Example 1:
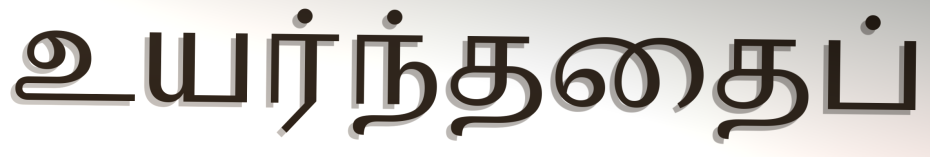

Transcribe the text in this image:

உயர்ந்ததைப்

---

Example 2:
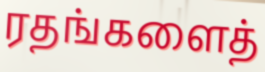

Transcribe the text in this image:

ரதங்களைத்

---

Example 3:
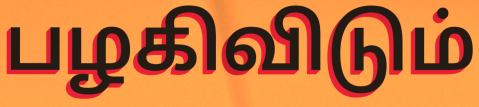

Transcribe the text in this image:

பழகிவிடும்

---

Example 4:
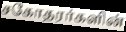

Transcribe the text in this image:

சகோதரர்களின்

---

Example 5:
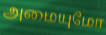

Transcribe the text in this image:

அமையுமோ